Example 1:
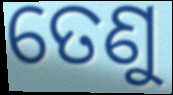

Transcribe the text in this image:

ତେଣୁ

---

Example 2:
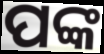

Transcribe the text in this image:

ପଙ୍କ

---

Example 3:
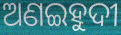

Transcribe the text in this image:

ଅଣଇହୁଦୀ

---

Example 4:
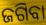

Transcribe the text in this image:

ଜଗିବା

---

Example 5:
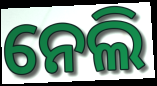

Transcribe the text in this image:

ନେଲି